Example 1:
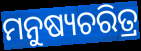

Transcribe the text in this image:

ମନୁଷ୍ୟଚରିତ୍ର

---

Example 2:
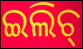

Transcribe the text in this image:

ଇଲିଚ୍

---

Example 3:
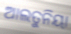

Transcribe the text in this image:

ଆଲତୁନିୟା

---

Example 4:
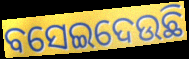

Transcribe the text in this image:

ବସେଇଦେଉଛି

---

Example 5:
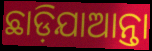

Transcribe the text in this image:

ଛାଡ଼ିଯାଆନ୍ତା